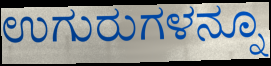
ಉಗುರುಗಳನ್ನೂ